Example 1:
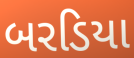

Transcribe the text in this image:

બરડિયા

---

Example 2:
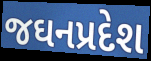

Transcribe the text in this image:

જઘનપ્રદેશ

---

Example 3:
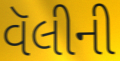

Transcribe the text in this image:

વૅલીની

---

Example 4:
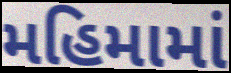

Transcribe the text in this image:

મહિમામાં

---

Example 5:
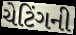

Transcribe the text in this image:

ચેટિંગની